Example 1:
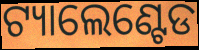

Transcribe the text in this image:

ଟ୍ୟାଲେଣ୍ଟେଡ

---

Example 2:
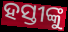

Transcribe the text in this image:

ହସ୍ତୀଙ୍କୁ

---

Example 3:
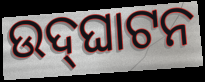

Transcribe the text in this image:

ଉଦ୍‍ଘାଟନ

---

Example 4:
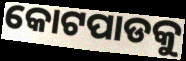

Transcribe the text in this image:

କୋଟପାଡକୁ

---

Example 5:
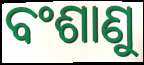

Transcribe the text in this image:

ବଂଶାଣୁ